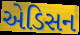
એડિસન